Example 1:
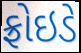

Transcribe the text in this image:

ફ્રોઇડે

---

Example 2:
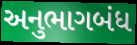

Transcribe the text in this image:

અનુભાગબંધ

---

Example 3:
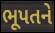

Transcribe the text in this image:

ભૂપતને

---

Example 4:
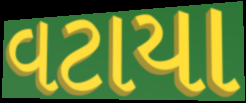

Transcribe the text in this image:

વટાયા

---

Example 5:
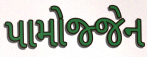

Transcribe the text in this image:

પામોજ્જેન